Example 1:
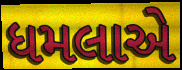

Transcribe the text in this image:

ધમલાએ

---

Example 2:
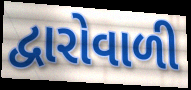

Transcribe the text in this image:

દ્વારોવાળી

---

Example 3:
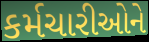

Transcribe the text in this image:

કર્મચારીઓને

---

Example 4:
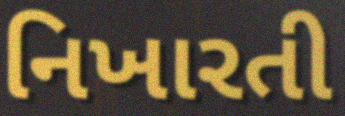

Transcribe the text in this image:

નિખારતી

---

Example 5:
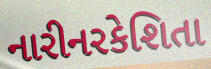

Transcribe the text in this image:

નારીનરકેશિતા